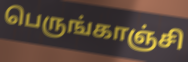
பெருங்காஞ்சி